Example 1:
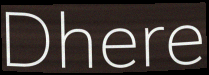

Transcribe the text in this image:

Dhere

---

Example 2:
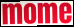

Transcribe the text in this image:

mome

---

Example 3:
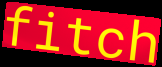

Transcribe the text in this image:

fitch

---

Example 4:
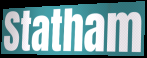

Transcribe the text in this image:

Statham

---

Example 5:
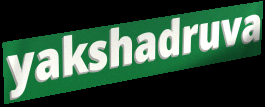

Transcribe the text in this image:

yakshadruva